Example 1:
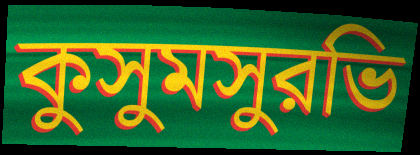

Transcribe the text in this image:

কুসুমসুরভি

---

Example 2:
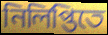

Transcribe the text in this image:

নির্লিপ্তিতে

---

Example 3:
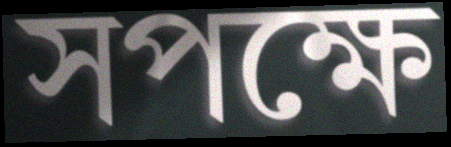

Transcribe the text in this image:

সপক্ষে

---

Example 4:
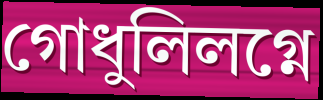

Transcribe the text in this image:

গোধুলিলগ্নে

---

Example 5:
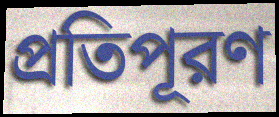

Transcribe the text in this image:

প্রতিপূরণ